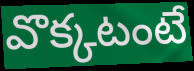
వొక్కటంటే